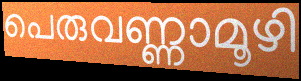
പെരുവണ്ണാമൂഴി